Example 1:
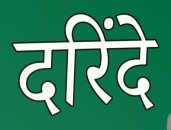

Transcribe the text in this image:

दरिंदे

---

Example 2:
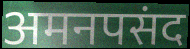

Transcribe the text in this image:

अमनपसंद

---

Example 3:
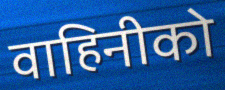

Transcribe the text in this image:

वाहिनीको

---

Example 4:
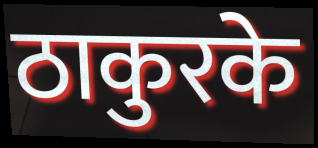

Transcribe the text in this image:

ठाकुरके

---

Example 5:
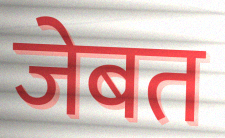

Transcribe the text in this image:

जेबत